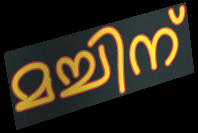
മച്ചിന്